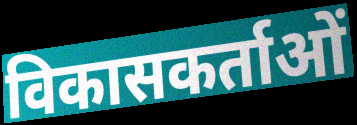
विकासकर्ताओं